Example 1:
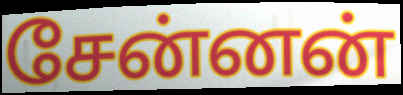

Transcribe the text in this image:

சேன்னன்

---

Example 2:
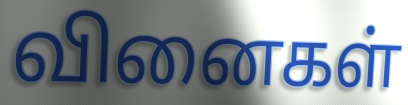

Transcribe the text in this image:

வினைகள்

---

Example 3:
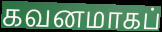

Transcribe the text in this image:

கவனமாகப்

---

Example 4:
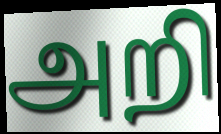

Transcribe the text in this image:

அறி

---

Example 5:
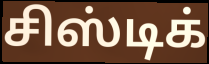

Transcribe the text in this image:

சிஸ்டிக்